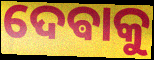
ଦେଵାକୁ